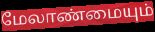
மேலாண்மையும்